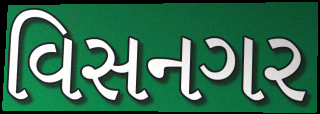
વિસનગર